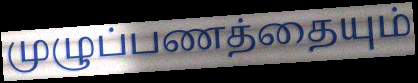
முழுப்பணத்தையும்